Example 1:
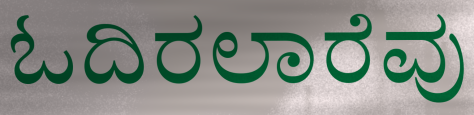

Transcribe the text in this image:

ಓದಿರಲಾರೆವು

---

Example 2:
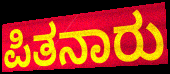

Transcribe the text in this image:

ಪಿತನಾರು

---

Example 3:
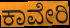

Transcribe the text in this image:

ಕಾವೇರಿ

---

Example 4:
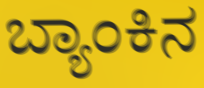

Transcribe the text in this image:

ಬ್ಯಾಂಕಿನ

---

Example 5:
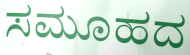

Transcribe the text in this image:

ಸಮೂಹದ